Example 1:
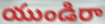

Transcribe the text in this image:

యుండిరా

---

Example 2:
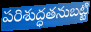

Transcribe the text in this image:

పరిశుద్ధతనుబట్టి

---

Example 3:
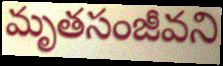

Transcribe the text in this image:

మృతసంజీవని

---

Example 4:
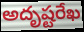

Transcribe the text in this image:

అదృష్టరేఖ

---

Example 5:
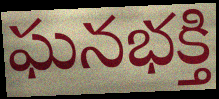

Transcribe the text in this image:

ఘనభక్తి